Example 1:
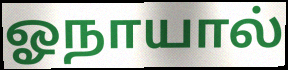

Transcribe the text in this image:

ஓநாயால்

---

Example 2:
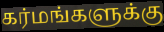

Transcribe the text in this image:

கர்மங்களுக்கு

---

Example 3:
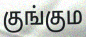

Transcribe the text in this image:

குங்கும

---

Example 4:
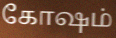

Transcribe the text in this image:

கோஷம்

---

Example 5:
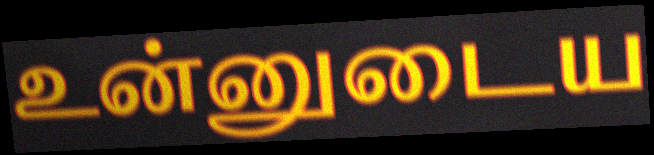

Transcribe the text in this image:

உன்னுடைய